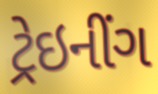
ટ્રેઇનીંગ